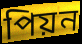
পিয়ন